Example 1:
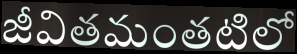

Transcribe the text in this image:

జీవితమంతటిలో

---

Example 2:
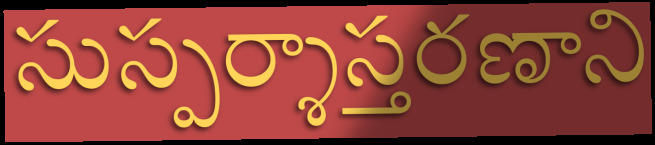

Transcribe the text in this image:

సుస్పర్శాస్తరణాని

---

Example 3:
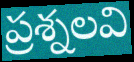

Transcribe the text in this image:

ప్రశ్నలవి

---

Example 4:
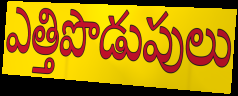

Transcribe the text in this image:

ఎత్తిపొడుపులు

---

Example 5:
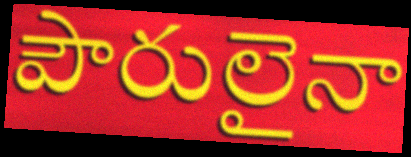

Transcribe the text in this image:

పౌరులైనా